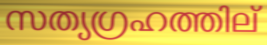
സത്യഗ്രഹത്തില്